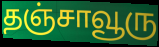
தஞ்சாவூரு